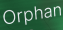
Orphan